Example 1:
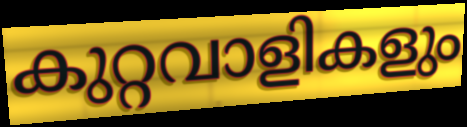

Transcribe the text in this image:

കുറ്റവാളികളും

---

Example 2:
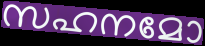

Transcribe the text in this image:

സഹനമോ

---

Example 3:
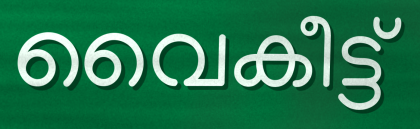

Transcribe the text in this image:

വൈകീട്ട്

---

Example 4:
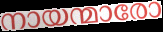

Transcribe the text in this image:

നായന്മാരോ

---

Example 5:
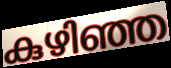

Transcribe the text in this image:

കുഴിഞ്ഞ